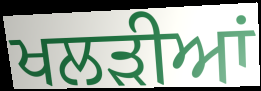
ਖਲੜੀਆਂ